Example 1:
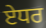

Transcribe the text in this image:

ਏਧਰ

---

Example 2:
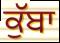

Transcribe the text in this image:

ਕੁੱਬਾ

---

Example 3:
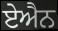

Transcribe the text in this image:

ਏਐਨ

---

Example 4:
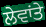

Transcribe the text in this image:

ਲੇਵਾਂਤੇ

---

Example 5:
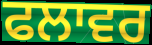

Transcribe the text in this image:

ਫਲਾਵਰ